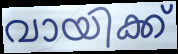
വായിക്ക്